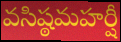
వసిష్ఠమహర్షీ